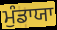
ਮੁੰਡਾਯਾ